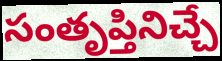
సంతృప్తినిచ్చే